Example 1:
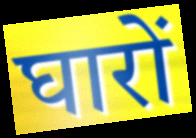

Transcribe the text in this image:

घारों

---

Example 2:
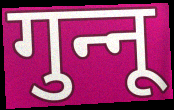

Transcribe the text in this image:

गुन्नू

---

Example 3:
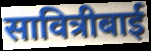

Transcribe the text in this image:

सावित्रीबाई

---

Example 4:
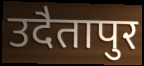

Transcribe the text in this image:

उदैतापुर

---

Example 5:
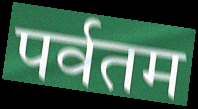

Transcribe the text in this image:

पर्वतम